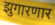
झुगारणार